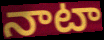
నాటా